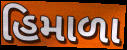
હિમાળા